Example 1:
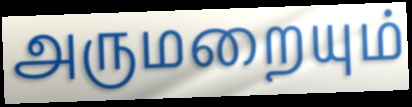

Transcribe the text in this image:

அருமறையும்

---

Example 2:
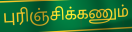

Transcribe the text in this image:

புரிஞ்சிக்கணும்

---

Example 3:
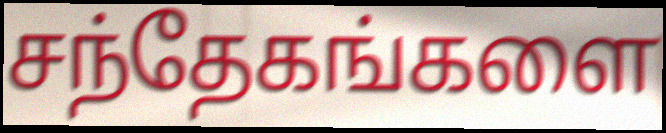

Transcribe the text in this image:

சந்தேகங்களை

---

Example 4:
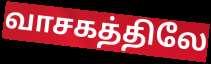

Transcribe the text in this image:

வாசகத்திலே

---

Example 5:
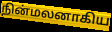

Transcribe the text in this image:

நின்மலனாகிய